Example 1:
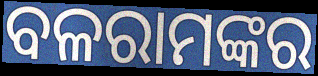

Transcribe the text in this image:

ବଳରାମଙ୍କର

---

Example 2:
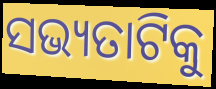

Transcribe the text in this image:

ସଭ୍ୟତାଟିକୁ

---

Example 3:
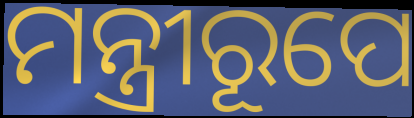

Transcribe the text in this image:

ମନ୍ତ୍ରୀରୂପେ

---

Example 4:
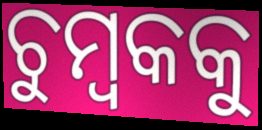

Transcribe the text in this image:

ଚୁମ୍ବକକୁ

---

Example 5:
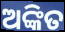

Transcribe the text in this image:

ଅଙ୍କିତ